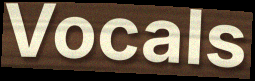
Vocals